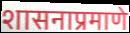
शासनाप्रमाणे